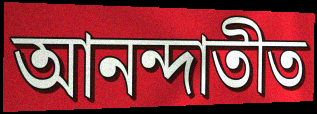
আনন্দাতীত